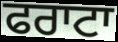
ਫਰਾਟਾ